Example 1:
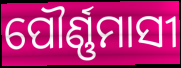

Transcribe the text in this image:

ପୌର୍ଣ୍ଣମାସୀ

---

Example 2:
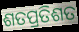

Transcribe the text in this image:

ଶତପ୍ରତିଶତ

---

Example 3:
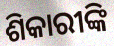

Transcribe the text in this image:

ଶିକାରୀଙ୍କି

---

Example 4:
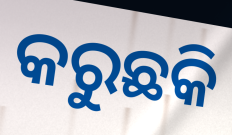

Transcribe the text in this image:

କରୁଛକି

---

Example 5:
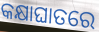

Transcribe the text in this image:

କକ୍ଷାଘାତରେ